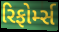
રિફોર્મ્સ